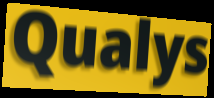
Qualys